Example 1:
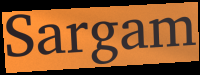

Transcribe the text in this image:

Sargam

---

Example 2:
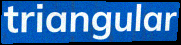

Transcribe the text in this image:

triangular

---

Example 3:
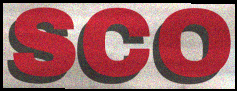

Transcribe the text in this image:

SCO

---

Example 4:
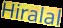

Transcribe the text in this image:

Hiralal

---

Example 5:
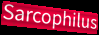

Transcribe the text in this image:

Sarcophilus